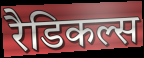
रैडिकल्स